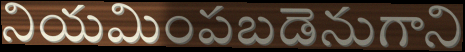
నియమింపబడెనుగాని